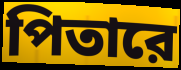
পিতারে